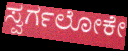
ಸ್ವರ್ಗಲೋಕೇ